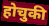
होचुकी